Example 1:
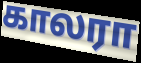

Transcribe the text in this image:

காலரா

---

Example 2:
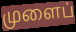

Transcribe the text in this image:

முளைப்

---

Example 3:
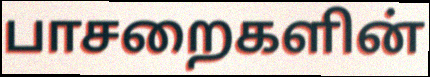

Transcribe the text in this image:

பாசறைகளின்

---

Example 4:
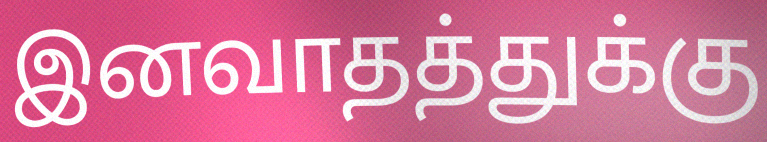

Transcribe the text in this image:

இனவாதத்துக்கு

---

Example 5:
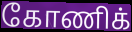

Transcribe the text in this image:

கோணிக்